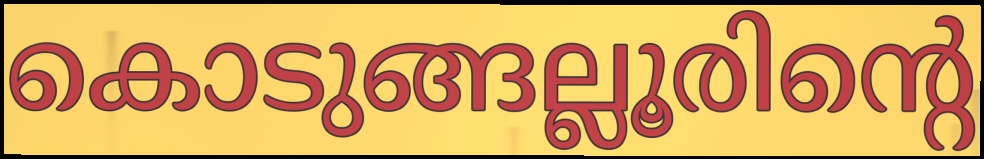
കൊടുങ്ങല്ലൂരിന്റെ